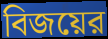
বিজয়ের